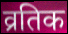
व्रतिक